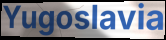
Yugoslavia